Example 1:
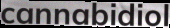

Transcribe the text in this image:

cannabidiol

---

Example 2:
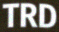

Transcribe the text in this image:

TRD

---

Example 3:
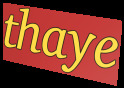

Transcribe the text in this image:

thaye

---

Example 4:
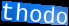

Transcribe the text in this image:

thodo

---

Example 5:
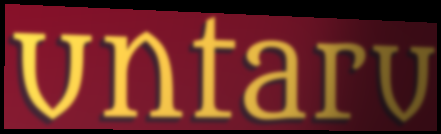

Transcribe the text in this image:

untaru